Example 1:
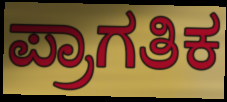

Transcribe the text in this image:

ಪ್ರಾಗತಿಕ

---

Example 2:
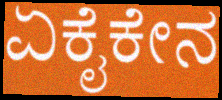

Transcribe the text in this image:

ಏಕೈಕೇನ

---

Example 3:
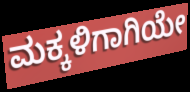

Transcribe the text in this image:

ಮಕ್ಕಳಿಗಾಗಿಯೇ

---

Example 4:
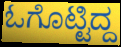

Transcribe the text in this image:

ಓಗೊಟ್ಟಿದ್ದ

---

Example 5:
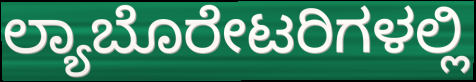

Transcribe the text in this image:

ಲ್ಯಾಬೊರೇಟರಿಗಳಲ್ಲಿ